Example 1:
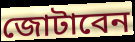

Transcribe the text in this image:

জোটাবেন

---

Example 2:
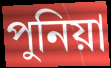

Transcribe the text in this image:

পুনিয়া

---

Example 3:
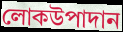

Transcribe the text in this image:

লোকউপাদান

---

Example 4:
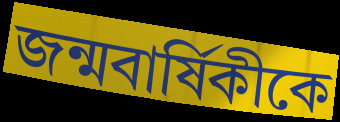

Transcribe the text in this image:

জন্মবার্ষিকীকে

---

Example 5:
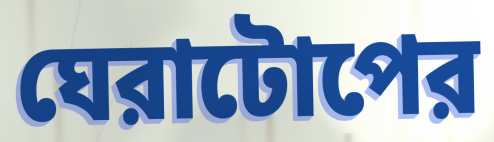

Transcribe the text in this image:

ঘেরাটোপের